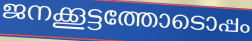
ജനക്കൂട്ടത്തോടൊപ്പം